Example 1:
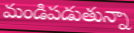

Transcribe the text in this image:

మండిపడుతున్నా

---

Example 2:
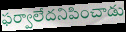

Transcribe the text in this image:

ఫర్వాలేదనిపించాడు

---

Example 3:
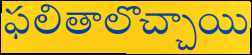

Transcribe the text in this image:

ఫలితాలొచ్చాయి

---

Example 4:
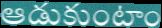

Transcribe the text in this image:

ఆడుకుంటాం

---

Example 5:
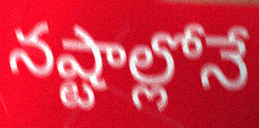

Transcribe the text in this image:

నష్టాల్లోనే